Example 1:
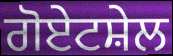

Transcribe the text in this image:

ਗੋਏਟਸ਼ੇਲ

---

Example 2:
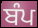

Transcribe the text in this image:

ਬੰਪ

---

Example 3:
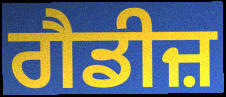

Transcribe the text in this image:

ਗੈਡੀਜ਼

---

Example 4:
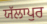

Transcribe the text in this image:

ਯੱਲਾਪੁਰ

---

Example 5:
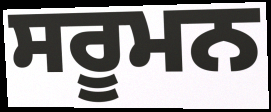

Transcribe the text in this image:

ਸਰੂਮਨ